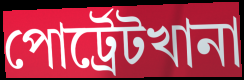
পোর্ট্রেটখানা